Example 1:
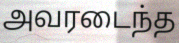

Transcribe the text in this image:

அவரடைந்த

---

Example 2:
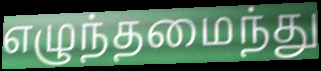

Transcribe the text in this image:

எழுந்தமைந்து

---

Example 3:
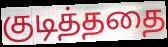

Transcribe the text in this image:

குடித்ததை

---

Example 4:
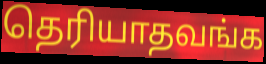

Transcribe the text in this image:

தெரியாதவங்க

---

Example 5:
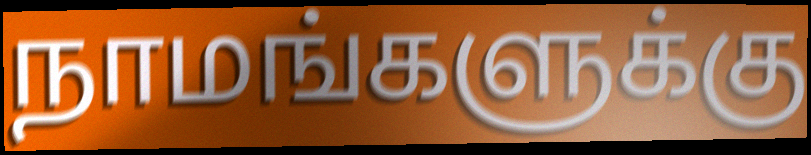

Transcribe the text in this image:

நாமங்களுக்கு